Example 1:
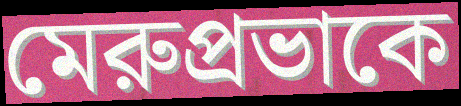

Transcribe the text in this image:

মেরুপ্রভাকে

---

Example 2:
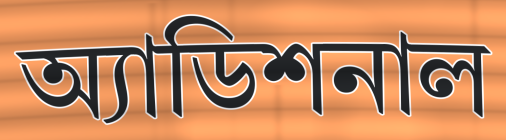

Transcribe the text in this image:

অ্যাডিশনাল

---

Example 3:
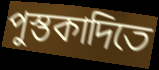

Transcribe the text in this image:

পুস্তকাদিতে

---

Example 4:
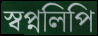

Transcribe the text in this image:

স্বপ্নলিপি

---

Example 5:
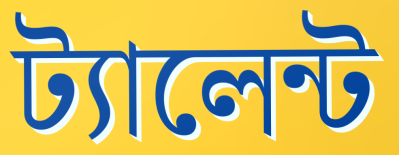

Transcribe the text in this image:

ট্যালেন্ট